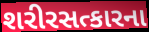
શરીરસત્કારના